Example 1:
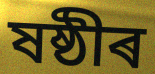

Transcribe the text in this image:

ষষ্ঠীৰ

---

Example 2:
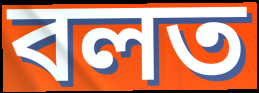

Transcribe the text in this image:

বলত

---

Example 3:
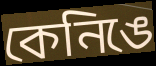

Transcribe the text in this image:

কেনিঙে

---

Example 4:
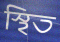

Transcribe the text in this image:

স্থিত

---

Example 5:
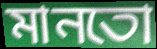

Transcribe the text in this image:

মানতো